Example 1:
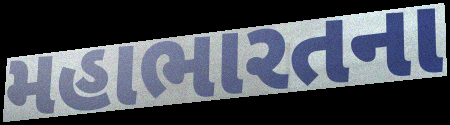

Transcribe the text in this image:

મહાભારતના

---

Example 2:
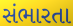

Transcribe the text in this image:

સંભારતા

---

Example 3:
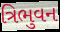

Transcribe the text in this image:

ત્રિભુવન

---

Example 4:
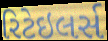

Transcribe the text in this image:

રિટેઇલર્સ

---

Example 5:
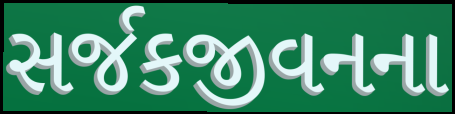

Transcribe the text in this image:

સર્જકજીવનના